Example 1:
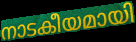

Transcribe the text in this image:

നാടകീയമായി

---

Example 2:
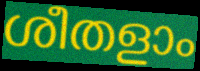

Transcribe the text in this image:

ശീതളാം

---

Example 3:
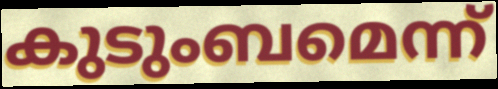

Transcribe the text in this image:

കുടുംബമെന്ന്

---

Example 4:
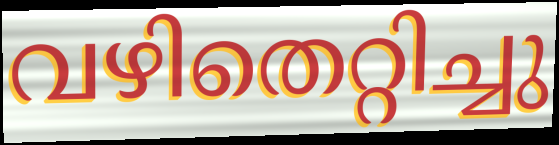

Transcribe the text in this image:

വഴിതെറ്റിച്ചു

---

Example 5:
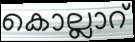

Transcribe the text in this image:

കൊല്ലാറ്